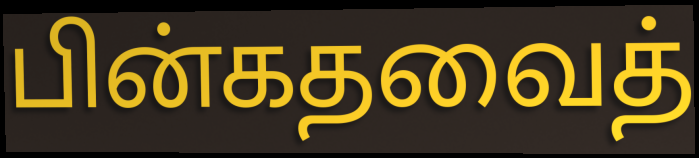
பின்கதவைத்